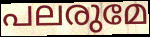
പലരുമേ